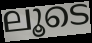
ലൂടെ